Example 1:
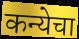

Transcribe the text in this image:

कन्येचा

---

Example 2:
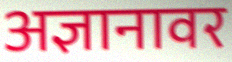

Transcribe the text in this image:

अज्ञानावर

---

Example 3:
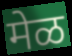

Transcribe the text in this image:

मेळ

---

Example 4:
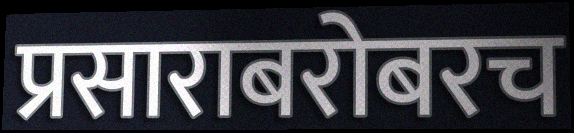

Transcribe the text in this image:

प्रसाराबरोबरच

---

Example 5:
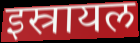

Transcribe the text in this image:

इस्रायल